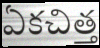
ఏకచిత్త